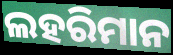
ଲହରିମାନ